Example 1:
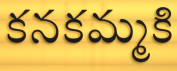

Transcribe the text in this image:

కనకమ్మకి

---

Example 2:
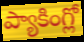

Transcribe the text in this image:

ప్యాకింగ్లో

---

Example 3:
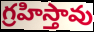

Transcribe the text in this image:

గ్రహిస్తావు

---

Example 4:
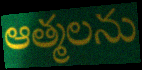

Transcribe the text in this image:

ఆత్మలను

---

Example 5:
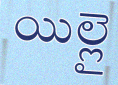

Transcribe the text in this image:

యిల్లై